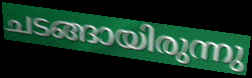
ചടങ്ങായിരുന്നു